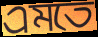
এমতে